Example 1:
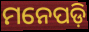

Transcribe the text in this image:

ମନେପଡ଼ି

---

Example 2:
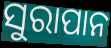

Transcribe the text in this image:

ସୁରାପାନ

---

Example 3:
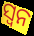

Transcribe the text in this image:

ସ୍ୱନ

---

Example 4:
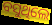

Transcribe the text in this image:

ବସୁଥିଲେ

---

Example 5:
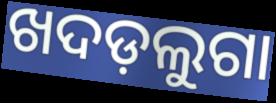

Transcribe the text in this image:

ଖଦଡ଼ଲୁଗା